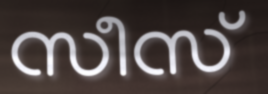
സീസ്